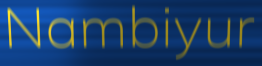
Nambiyur